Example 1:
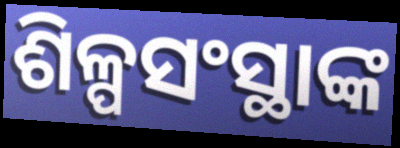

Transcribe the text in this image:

ଶିଳ୍ପସଂସ୍ଥାଙ୍କ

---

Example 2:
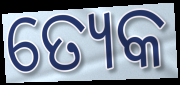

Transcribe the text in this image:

ତ୍ଯେକ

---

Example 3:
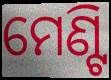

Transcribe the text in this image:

ମେଣ୍ଟି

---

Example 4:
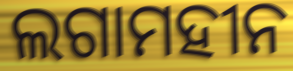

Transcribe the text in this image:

ଲଗାମହୀନ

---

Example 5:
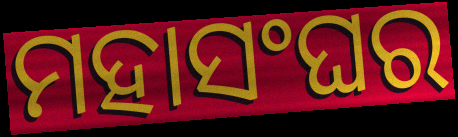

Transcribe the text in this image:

ମହାସଂଘର